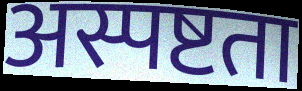
अस्पष्टता